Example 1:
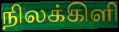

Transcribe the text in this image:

நிலக்கிளி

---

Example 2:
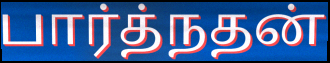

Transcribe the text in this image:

பார்த்நதன்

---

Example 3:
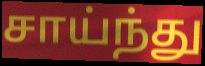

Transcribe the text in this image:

சாய்ந்து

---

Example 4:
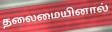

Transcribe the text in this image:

தலைமையினால்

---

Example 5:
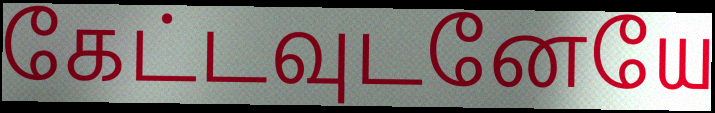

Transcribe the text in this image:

கேட்டவுடனேயே